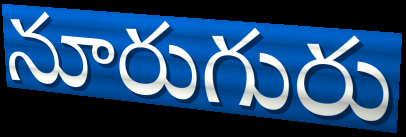
నూరుగురు